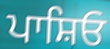
ਪਾਸ਼ਿਓ